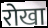
रोखा